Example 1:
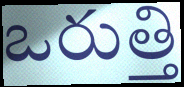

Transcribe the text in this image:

ఒరుత్తి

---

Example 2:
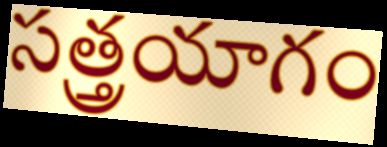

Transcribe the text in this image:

సత్త్రయాగం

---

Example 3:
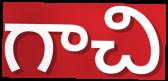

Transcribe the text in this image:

గాచి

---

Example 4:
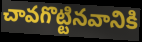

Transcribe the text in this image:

చావగొట్టినవానికి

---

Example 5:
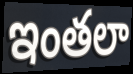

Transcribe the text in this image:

ఇంతలా